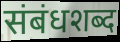
संबंधशब्द